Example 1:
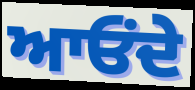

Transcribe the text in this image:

ਆਓਂਦੇ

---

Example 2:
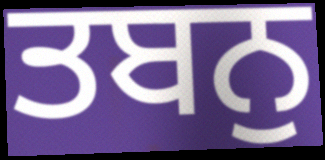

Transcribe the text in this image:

ਤਬਨੁ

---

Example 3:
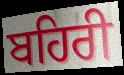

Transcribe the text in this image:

ਬਹਿਰੀ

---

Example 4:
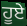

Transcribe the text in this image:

ਹੂਏ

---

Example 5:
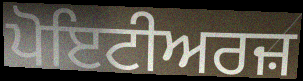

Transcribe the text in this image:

ਪੋਇਟੀਅਰਜ਼